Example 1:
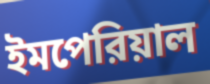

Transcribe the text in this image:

ইমপেরিয়াল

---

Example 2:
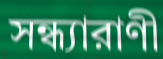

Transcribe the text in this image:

সন্ধ্যারাণী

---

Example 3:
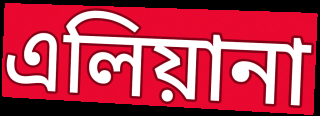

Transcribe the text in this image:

এলিয়ানা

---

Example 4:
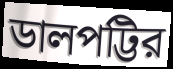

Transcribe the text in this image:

ডালপট্টির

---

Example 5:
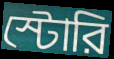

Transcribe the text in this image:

স্টোরি